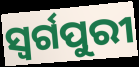
ସ୍ଵର୍ଗପୁରୀ